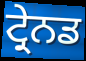
ਟ੍ਰੇਨਡ